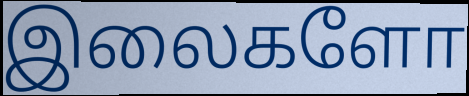
இலைகளோ